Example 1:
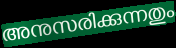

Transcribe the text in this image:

അനുസരിക്കുന്നതും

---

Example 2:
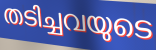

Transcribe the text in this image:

തടിച്ചവയുടെ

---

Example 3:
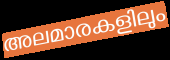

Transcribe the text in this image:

അലമാരകളിലും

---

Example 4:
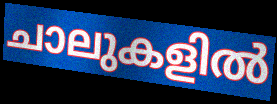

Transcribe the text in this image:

ചാലുകളിൽ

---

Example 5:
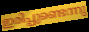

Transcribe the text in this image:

ഇരിപ്പുണ്ടെന്നു